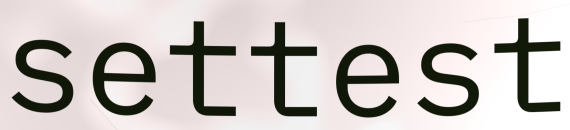
settest